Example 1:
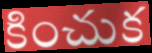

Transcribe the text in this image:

కించుక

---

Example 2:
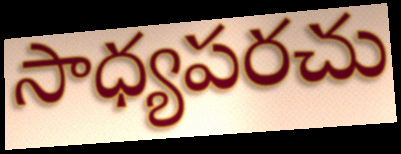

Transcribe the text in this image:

సాధ్యపరచు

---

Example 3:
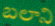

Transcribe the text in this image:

బలాని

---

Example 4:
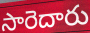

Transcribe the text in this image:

సారెదారు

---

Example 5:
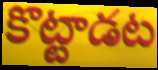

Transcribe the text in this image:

కొట్టాడట